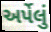
અર્પેલું